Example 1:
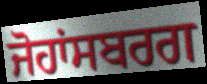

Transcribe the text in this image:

ਜੋਹਾਂਸਬਰਗ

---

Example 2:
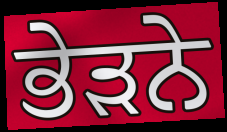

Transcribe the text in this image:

ਭੇੜਨੇ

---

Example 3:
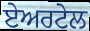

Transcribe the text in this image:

ਏਅਰਟੇਲ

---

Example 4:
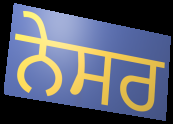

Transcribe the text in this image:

ਨੇਸਰ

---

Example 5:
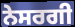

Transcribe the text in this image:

ਨੇਸਰਗੀ